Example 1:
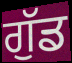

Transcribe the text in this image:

ਗੁੱਡ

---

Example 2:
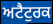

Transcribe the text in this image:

ਅਟੈਟੁਰਕ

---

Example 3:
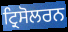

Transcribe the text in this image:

ਟ੍ਰਿਸੋਲਰਨ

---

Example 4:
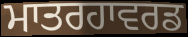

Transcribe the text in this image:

ਮਾਤਰਹਾਵਰਡ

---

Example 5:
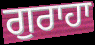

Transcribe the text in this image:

ਗੁਰਾਹਾ